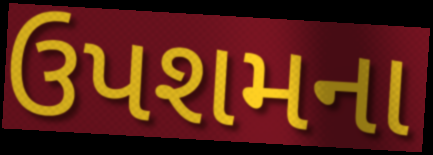
ઉપશમના